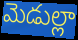
మెడుల్లా